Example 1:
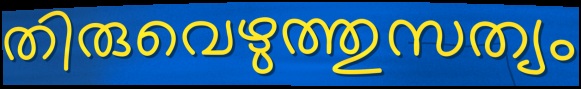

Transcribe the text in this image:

തിരുവെഴുത്തുസത്യം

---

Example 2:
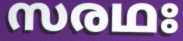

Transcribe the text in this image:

സരഥഃ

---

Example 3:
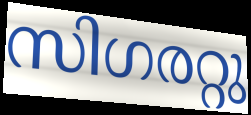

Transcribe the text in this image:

സിഗരറ്റു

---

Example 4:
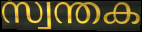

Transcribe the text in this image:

സ്വന്തക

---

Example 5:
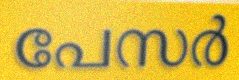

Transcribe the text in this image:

പേസർ